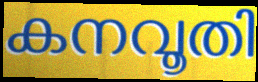
കനവൂതി